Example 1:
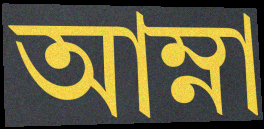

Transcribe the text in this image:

আম্না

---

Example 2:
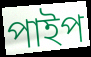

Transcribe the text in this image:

পাইপ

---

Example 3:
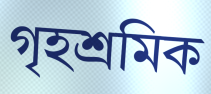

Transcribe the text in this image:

গৃহশ্রমিক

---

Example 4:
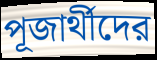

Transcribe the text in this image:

পূজার্থীদের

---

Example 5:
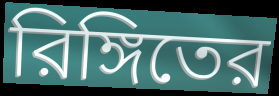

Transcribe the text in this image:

রিঙ্গিতের